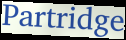
Partridge